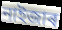
নাইজাৰ